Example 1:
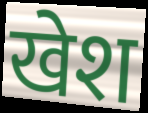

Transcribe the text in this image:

खेश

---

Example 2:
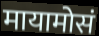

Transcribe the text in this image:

मायामोसं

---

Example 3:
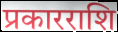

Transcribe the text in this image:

प्रकारराशि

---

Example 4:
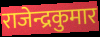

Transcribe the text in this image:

राजेन्द्रकुमार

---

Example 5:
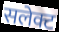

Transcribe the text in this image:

सलेक्ट